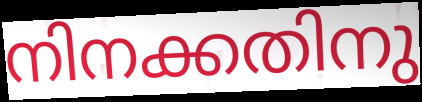
നിനക്കതിനു